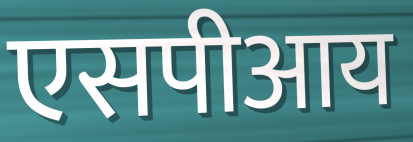
एसपीआय